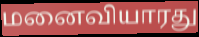
மனைவியாரது